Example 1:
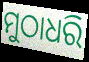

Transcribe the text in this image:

ମୁଠାଧରି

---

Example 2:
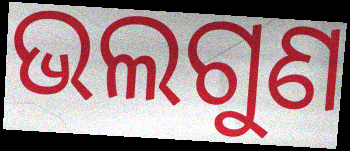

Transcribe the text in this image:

ଭଲଗୁଣ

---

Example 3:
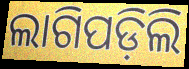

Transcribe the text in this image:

ଲାଗିପଡ଼ିଲି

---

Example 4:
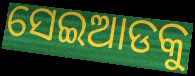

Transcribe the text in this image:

ସେଇଆଡକୁ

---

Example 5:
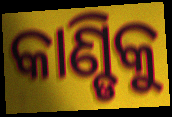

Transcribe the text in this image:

କାଣ୍ଡିକୁ